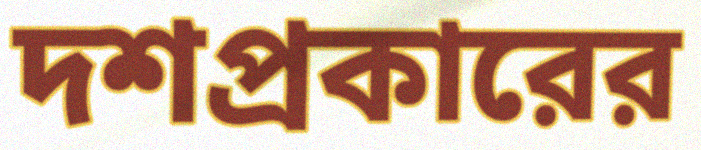
দশপ্রকারের